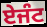
ਏਜੰਟ